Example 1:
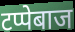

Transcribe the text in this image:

टप्पेबाज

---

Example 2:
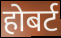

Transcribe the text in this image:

होबर्ट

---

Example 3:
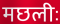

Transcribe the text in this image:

मछलीः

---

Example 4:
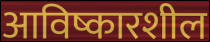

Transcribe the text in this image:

आविष्कारशील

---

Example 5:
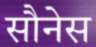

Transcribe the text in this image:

सौनेस